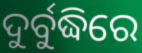
ଦୁର୍ବୁଦ୍ଧିରେ